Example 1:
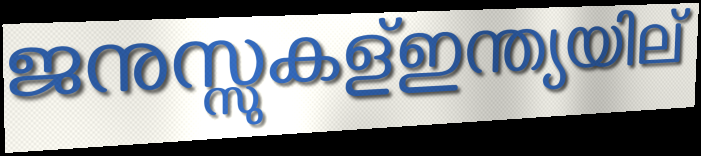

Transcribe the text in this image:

ജനുസ്സുകള്ഇന്ത്യയില്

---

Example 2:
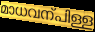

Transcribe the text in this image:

മാധവന്പിള്ള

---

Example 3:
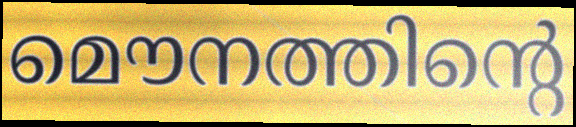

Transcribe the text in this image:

മൌനത്തിന്റെ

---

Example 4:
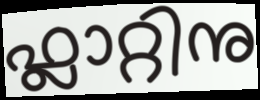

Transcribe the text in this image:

ഫ്ലാറ്റിനു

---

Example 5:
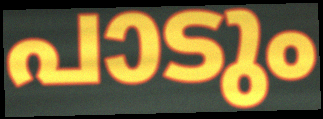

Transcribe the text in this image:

പാടും